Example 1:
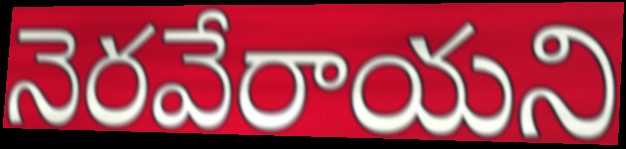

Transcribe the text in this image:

నెరవేరాయని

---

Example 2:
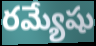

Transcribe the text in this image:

రమ్యేషు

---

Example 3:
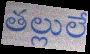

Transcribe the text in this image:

తల్లులే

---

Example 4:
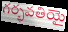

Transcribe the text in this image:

గర్భవతియై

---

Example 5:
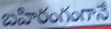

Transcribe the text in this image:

బహిరంగంగానే